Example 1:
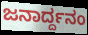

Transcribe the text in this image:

ಜನಾರ್ದ್ದನಂ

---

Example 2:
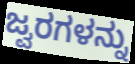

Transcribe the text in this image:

ಜ್ವರಗಳನ್ನು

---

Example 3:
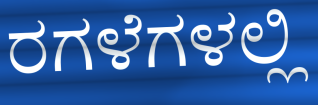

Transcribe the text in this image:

ರಗಳೆಗಳಲ್ಲಿ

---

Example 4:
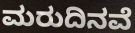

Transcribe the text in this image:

ಮರುದಿನವೆ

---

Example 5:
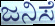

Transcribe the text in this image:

ಜನಿಸೆ